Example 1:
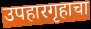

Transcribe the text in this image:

उपहारगृहाचा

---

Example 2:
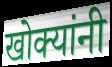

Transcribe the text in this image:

खोक्यांनी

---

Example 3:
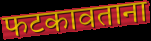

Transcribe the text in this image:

फटकावताना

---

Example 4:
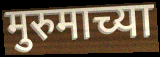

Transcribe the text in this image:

मुरुमाच्या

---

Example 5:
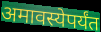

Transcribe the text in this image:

अमावस्येपर्यंत